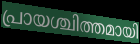
പ്രായശ്ചിത്തമായി